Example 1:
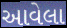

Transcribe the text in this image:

આવેલા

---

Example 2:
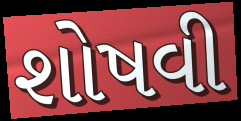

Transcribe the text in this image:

શોષવી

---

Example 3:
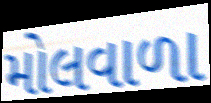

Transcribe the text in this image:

મોલવાળા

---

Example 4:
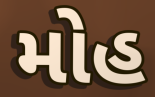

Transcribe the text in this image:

મોહ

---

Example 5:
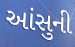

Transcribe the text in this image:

આંસુની